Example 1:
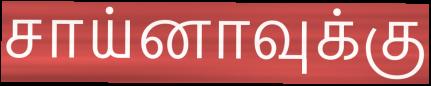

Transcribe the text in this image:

சாய்னாவுக்கு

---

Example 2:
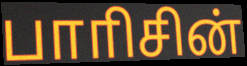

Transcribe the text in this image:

பாரிசின்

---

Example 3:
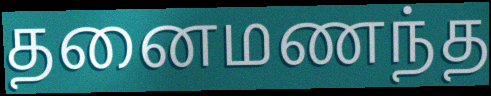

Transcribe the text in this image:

தனைமணந்த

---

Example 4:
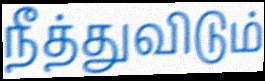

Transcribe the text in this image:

நீத்துவிடும்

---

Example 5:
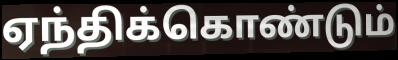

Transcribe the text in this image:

ஏந்திக்கொண்டும்